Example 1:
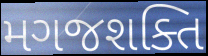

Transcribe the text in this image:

મગજશક્તિ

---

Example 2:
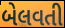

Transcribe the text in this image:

બેલવતી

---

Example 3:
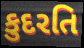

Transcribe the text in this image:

કુદરતિ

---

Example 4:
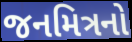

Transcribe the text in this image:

જનમિત્રનો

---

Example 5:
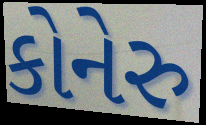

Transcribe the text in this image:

કોનેરુ